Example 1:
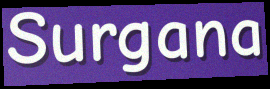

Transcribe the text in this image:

Surgana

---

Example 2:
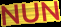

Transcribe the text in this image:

NUN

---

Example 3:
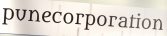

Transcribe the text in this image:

punecorporation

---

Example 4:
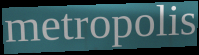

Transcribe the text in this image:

metropolis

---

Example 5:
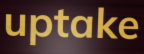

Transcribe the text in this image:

uptake